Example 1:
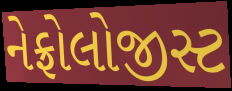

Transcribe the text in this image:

નેફ્રોલોજીસ્ટ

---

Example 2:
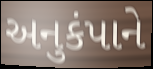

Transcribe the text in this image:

અનુકંપાને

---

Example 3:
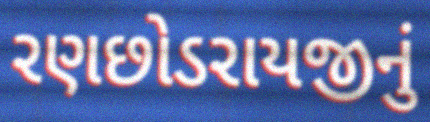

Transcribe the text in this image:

રણછોડરાયજીનું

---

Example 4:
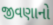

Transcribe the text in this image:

જીવણાનો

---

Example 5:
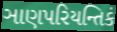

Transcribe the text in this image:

ઞાણપરિયન્તિકં